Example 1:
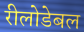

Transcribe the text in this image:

रीलोडेबल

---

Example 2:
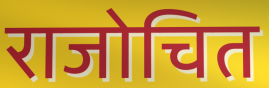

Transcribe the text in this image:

राजोचित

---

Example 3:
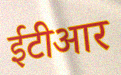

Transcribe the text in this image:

ईटीआर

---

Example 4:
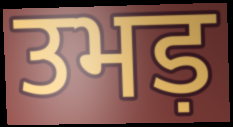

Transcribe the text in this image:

उभड़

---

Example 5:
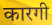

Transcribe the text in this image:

कारगी